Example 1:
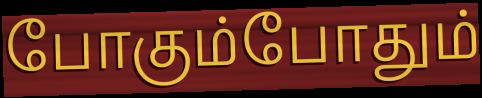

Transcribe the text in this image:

போகும்போதும்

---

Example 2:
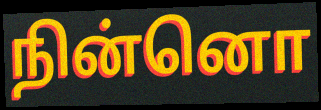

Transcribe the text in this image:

நின்னொ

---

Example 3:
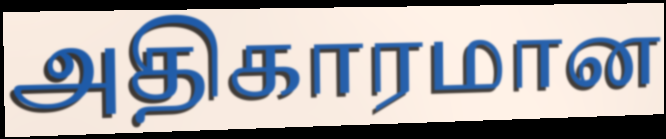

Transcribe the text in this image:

அதிகாரமான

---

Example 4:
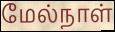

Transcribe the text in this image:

மேல்நாள்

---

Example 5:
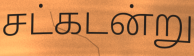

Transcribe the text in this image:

சட்கடன்று